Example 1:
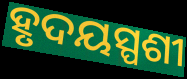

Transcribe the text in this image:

ହୃଦୟସ୍ପଶୀ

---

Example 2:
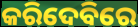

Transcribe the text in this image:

କରିଦେବିରେ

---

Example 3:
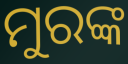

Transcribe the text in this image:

ମୁରଙ୍କ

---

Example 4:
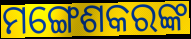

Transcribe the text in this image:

ମଙ୍ଗେଶକରଙ୍କ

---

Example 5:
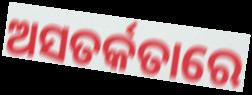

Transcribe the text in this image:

ଅସତର୍କତାରେ